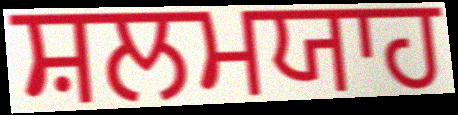
ਸ਼ਲਮਯਾਹ